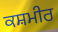
ਕਸ਼ਮੀਰ